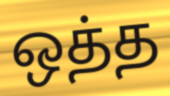
ஒத்த